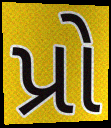
પ્રો